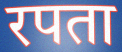
रपता